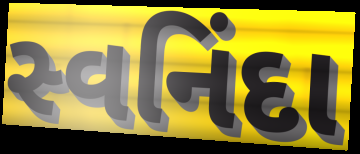
સ્વનિંદા